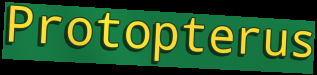
Protopterus